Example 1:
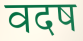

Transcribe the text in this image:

वदष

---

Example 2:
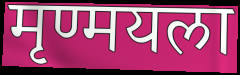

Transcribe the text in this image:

मृण्मयला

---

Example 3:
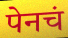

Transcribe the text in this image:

पेनचं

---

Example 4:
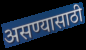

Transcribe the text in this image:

असण्यासाठी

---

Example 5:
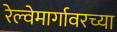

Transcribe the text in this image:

रेल्वेमार्गावरच्या